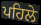
ਪਹਿਲੇ